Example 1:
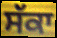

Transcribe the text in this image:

ਸੱਕਾ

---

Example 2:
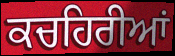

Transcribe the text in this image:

ਕਚਹਿਰੀਆਂ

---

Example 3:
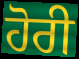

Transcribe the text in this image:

ਹੋਰੀ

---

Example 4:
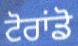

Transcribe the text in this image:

ਟੋਰਾਂਡੋ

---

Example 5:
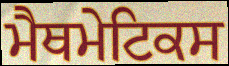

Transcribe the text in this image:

ਮੈਥਮੇਟਿਕਸ